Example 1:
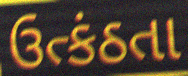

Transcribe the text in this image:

ઉત્કંઠતા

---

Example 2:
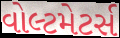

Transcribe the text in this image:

વોલ્ટમેટર્સ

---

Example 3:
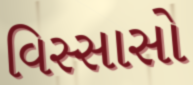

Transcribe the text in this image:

વિસ્સાસો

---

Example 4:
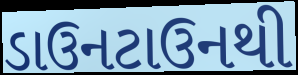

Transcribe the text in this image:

ડાઉનટાઉનથી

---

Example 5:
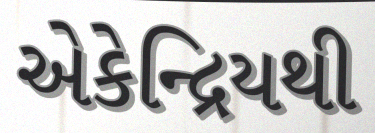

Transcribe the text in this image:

એકેન્દ્રિયથી